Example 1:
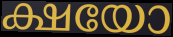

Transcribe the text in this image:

ക്ഷയോ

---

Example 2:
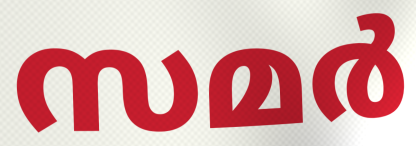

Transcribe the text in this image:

സമർ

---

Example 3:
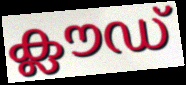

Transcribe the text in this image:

ക്ലൗഡ്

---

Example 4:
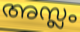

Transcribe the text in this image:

അസ്ലം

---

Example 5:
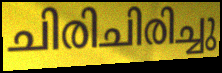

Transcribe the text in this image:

ചിരിചിരിച്ചു